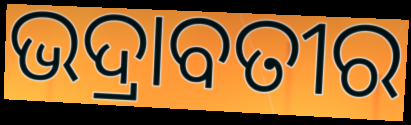
ଭଦ୍ରାବତୀର